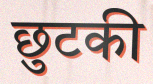
छुटकी